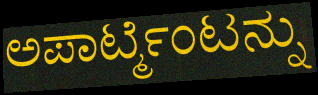
ಅಪಾರ್ಟ್ಮೆಂಟನ್ನು